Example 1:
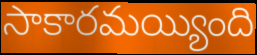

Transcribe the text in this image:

సాకారమయ్యింది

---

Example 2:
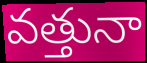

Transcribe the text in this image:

వత్తునా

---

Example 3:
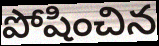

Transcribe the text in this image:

పోషించిన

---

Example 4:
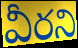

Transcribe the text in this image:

వీరని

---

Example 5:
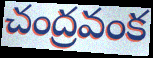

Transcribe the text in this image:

చంద్రవంక